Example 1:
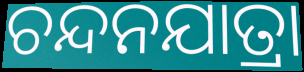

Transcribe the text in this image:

ଚନ୍ଦନଯାତ୍ରା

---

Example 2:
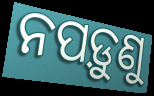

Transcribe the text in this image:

ନପଡ଼ୁଣୁ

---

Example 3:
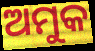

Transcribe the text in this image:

ଅମୁକ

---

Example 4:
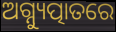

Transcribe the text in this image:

ଅଗ୍ନ୍ୟୁତ୍ପାତରେ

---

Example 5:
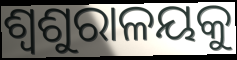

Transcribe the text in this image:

ଶ୍ୱଶୁରାଳୟକୁ